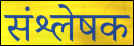
संश्लेषक